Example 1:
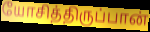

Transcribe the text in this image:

யோசித்திருப்பான்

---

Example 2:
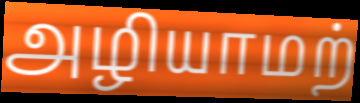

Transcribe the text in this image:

அழியாமற்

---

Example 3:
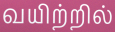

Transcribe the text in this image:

வயிற்றில்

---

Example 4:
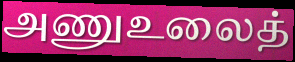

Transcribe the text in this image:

அணுஉலைத்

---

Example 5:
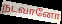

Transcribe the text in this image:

நடவானோ